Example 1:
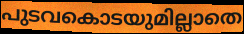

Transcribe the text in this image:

പുടവകൊടയുമില്ലാതെ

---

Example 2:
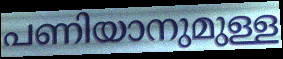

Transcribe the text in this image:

പണിയാനുമുള്ള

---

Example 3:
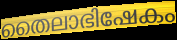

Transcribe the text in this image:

തൈലാഭിഷേകം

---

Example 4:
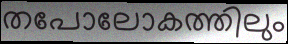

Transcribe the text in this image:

തപോലോകത്തിലും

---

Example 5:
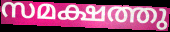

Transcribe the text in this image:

സമക്ഷത്തു